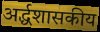
अर्द्धशासकीय